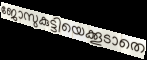
ജോസുകുട്ടിയെക്കൂടാതെ